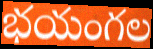
భయంగల